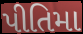
પીતિમા